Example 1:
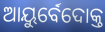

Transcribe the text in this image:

ଆୟୁର୍ବେଦୋକ୍ତ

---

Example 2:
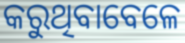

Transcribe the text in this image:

କରୁଥିବାବେଳେ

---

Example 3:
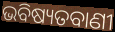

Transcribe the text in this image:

ଭବିଷ୍ୟତବାଣୀ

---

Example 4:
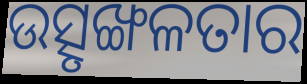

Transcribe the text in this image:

ଉତ୍ସୃଙ୍ଖଳତାର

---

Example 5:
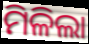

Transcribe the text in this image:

ମିଳିଲା